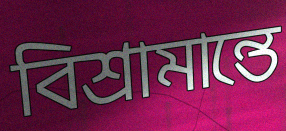
বিশ্রামান্তে